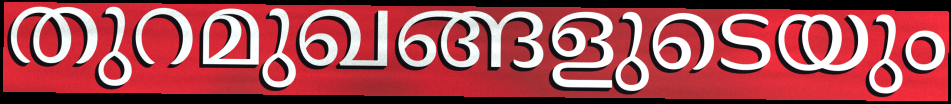
തുറമുഖങ്ങളുടെയും